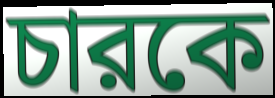
চারকে